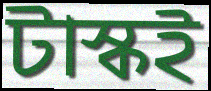
টাস্কই